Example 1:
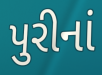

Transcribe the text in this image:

પુરીનાં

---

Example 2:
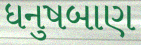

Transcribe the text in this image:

ધનુષબાણ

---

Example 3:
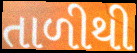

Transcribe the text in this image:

તાળીથી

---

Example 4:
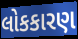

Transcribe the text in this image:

લોકકારણ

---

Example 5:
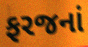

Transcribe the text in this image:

ફરજનાં